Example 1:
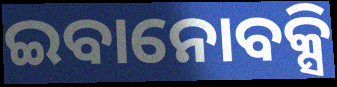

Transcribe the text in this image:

ଇବାନୋବକ୍ସି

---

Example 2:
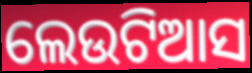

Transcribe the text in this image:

ଲେଉଟିଆସ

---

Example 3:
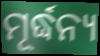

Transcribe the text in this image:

ମୂର୍ଦ୍ଧନ୍ୟ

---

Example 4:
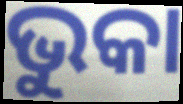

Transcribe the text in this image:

ଭୁକା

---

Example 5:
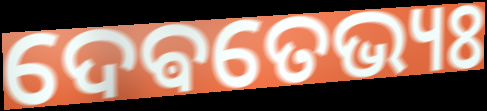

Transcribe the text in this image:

ଦେଵତେଭ୍ୟଃ